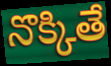
నొక్కితే